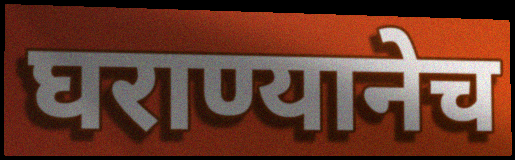
घराण्यानेच